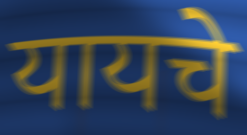
यायचे